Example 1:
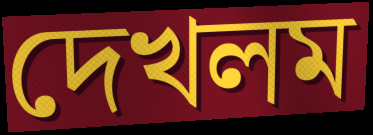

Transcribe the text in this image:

দেখলম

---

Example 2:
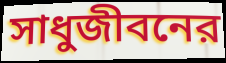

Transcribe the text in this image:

সাধুজীবনের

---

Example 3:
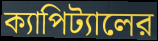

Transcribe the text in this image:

ক্যাপিট্যালের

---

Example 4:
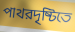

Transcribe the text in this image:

পাথরদৃষ্টিতে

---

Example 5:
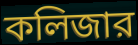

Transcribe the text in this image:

কলিজার